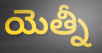
యెత్నీ